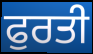
ਫੁਰਤੀ